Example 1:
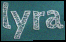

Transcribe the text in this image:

lyra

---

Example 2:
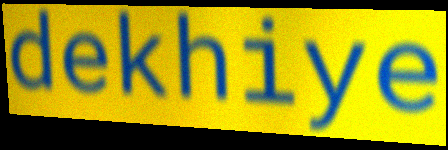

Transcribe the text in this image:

dekhiye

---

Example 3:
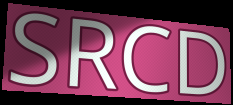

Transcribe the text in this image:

SRCD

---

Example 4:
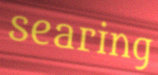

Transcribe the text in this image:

searing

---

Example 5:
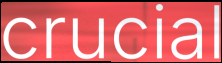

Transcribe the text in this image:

crucial